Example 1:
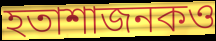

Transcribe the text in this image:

হতাশাজনকও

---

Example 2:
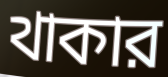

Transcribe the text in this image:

থাকার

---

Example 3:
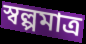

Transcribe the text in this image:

স্বল্পমাত্র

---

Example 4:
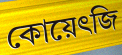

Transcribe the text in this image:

কোয়েৎজি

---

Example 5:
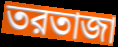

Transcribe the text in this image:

তরতাজা